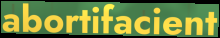
abortifacient